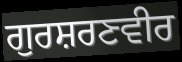
ਗੁਰਸ਼ਰਣਵੀਰ